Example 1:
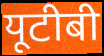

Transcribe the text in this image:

यूटीबी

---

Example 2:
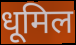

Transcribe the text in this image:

धूमिल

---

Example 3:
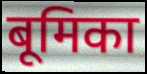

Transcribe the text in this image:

बूमिका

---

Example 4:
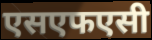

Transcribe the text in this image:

एसएफएसी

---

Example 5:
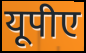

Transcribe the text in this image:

यूपीए